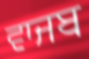
ਵਾਜਬ